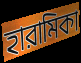
হারামিকা